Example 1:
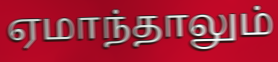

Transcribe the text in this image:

ஏமாந்தாலும்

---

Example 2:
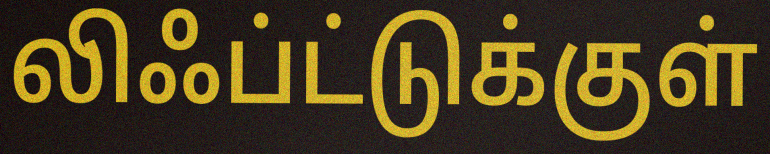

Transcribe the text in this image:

லிஃப்ட்டுக்குள்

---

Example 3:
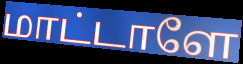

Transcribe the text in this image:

மாட்டாளே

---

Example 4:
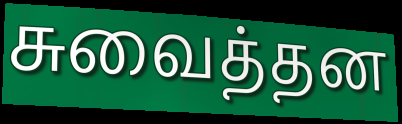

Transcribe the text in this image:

சுவைத்தன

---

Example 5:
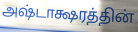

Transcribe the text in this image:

அஷ்டாக்ஷரத்தின்